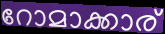
റോമാക്കാര്